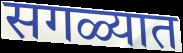
सगळ्यात